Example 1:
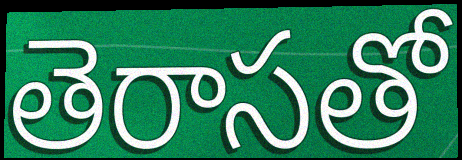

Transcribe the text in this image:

తెరాసతో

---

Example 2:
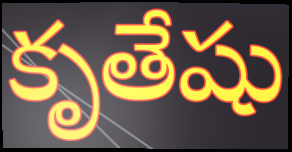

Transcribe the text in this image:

కృతేషు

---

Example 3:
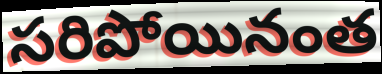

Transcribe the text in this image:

సరిపోయినంత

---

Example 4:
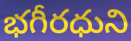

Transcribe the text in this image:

భగీరధుని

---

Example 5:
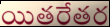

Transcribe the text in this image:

యితరేతర